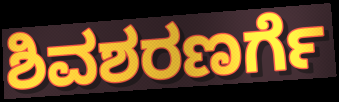
ಶಿವಶರಣರ್ಗೆ